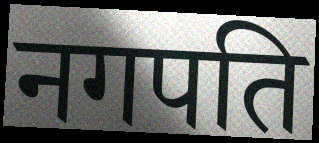
नगपति